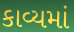
કાવ્યમાં